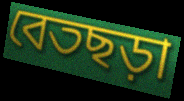
বেতছড়া